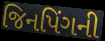
જિનપિંગની